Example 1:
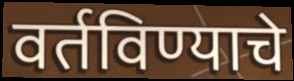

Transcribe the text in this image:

वर्तविण्याचे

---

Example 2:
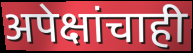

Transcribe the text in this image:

अपेक्षांचाही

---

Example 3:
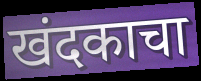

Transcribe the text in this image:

खंदकाचा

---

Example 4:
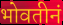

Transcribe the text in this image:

भोवतीनं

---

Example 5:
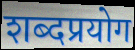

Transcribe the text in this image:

शब्दप्रयोग